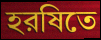
হরষিতে